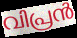
വിപ്രൻ